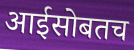
आईसोबतच